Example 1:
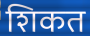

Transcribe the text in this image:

शिकत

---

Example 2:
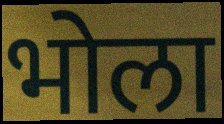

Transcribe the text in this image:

भोला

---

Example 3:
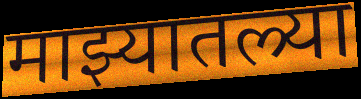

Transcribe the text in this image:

माझ्यातल्या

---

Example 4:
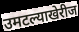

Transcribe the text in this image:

उमटल्याखेरीज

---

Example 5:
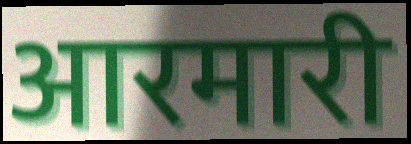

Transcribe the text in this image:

आरमारी